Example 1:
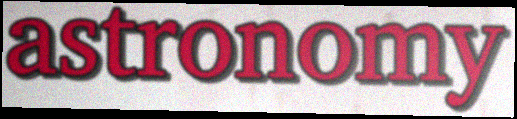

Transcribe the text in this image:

astronomy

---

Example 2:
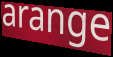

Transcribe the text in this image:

arange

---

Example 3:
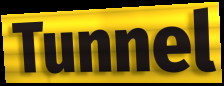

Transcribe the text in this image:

Tunnel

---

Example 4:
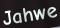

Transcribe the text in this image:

Jahwe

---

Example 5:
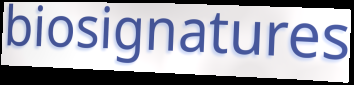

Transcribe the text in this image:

biosignatures